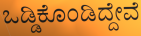
ಒಡ್ಡಿಕೊಂಡಿದ್ದೇವೆ